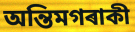
অন্তিমগৰাকী